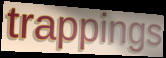
trappings